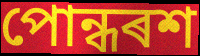
পোন্ধৰশ